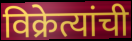
विक्रेत्यांची